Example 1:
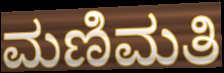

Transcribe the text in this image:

ಮಣಿಮತಿ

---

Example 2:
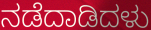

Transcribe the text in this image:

ನಡೆದಾಡಿದಳು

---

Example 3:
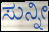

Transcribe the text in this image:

ಸುನ್ನೀ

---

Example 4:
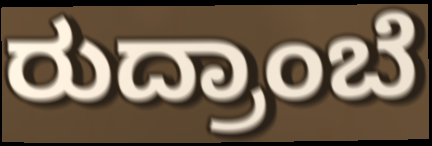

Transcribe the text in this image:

ರುದ್ರಾಂಬೆ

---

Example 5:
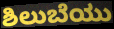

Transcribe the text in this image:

ಶಿಲುಬೆಯು